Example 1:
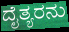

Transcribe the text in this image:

ದೈತ್ಯರನು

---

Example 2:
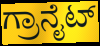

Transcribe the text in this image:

ಗ್ರಾನೈಟ್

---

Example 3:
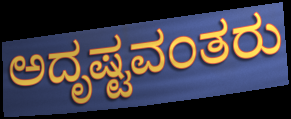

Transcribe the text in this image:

ಅದೃಷ್ಟವಂತರು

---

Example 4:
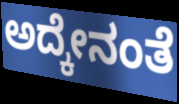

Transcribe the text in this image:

ಅದ್ಕೇನಂತೆ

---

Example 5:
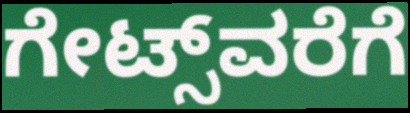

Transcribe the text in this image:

ಗೇಟ್ಸ್‌ವರೆಗೆ